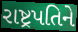
રાષ્ટ્રપતિને